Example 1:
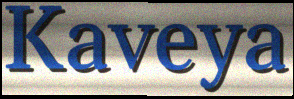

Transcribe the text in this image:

Kaveya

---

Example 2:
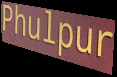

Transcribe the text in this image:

Phulpur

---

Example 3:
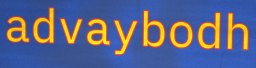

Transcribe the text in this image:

advaybodh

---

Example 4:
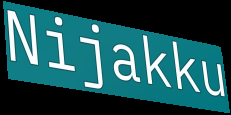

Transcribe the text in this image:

Nijakku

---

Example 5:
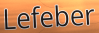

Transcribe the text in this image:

Lefeber